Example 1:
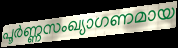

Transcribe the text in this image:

പൂർണ്ണസംഖ്യാഗണമായ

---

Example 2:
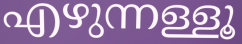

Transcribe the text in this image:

എഴുന്നള്ളൂ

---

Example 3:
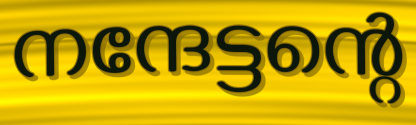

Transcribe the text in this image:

നന്ദേട്ടന്റെ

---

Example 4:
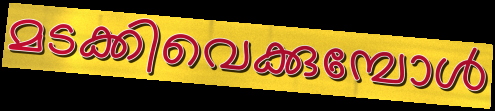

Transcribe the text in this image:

മടക്കിവെക്കുമ്പോൾ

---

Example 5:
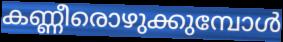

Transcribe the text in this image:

കണ്ണീരൊഴുക്കുമ്പോൾ